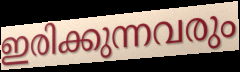
ഇരിക്കുന്നവരും